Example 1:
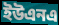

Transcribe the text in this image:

ইউএনএ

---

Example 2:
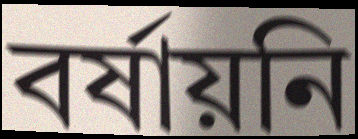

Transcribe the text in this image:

বর্ষায়নি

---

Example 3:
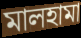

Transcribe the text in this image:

মালহামা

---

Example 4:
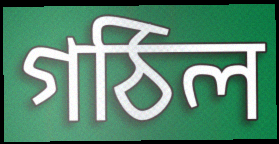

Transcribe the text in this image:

গঠিল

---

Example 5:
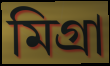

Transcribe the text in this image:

মিগ্রা